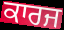
ਕਾਰਜ